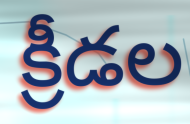
క్రీడల